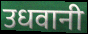
उधवानी